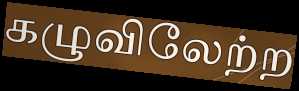
கழுவிலேற்ற